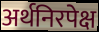
अर्थनिरपेक्ष